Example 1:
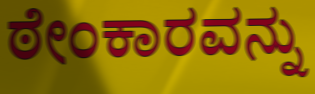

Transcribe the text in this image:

ಠೇಂಕಾರವನ್ನು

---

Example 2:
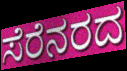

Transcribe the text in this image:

ಸೆರೆನರದ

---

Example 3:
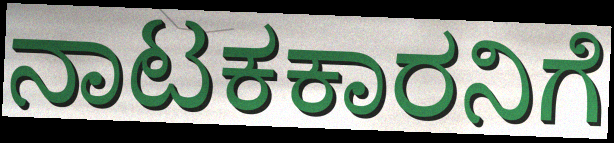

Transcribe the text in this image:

ನಾಟಕಕಾರನಿಗೆ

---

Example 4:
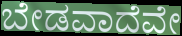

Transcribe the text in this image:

ಬೇಡವಾದೆವೇ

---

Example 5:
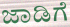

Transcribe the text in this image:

ಜಾಡಿಗೆ